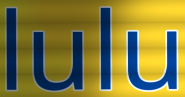
lulu